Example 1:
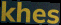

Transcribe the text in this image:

khes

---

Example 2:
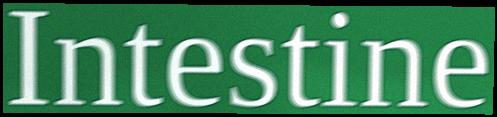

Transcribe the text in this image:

Intestine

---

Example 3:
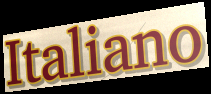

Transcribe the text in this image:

Italiano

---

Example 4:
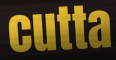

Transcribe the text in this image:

cutta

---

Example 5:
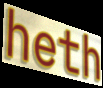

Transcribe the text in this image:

heth